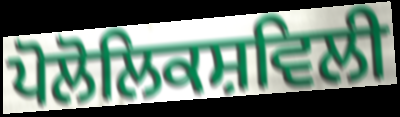
ਪੋਲੋਲਿਕਸ਼ਵਿਲੀ